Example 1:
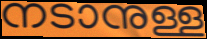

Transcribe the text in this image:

നടാനുള്ള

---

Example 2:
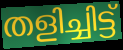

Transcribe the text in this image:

തളിച്ചിട്ട്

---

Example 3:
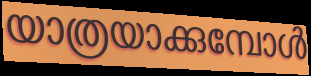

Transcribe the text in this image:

യാത്രയാക്കുമ്പോൾ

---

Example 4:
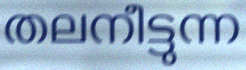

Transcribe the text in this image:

തലനീട്ടുന്ന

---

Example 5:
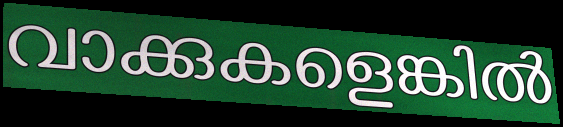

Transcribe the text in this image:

വാക്കുകളെങ്കിൽ